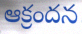
ఆక్రందన